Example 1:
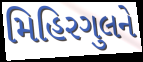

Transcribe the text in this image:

મિહિરગુલને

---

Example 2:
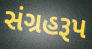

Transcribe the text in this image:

સંગ્રહરૂપ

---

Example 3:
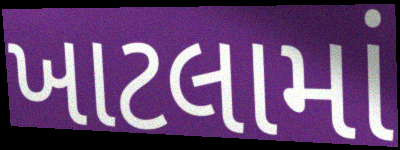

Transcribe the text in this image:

ખાટલામાં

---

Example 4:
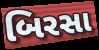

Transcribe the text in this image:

બિરસા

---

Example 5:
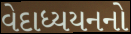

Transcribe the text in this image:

વેદાધ્યયનનો